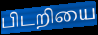
பிடறியை